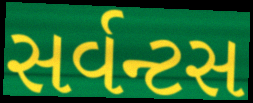
સર્વન્ટસ